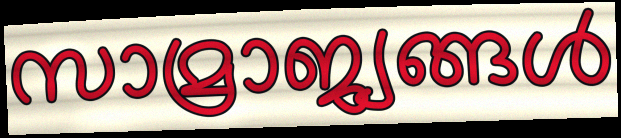
സാമ്രാജ്യങ്ങൾ